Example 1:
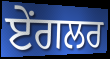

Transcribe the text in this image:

ਏਂਗਲਰ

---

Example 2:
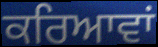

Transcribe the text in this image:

ਕਰਿਆਵਾਂ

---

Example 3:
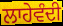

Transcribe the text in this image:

ਲਾਹੇਵੰਦੀ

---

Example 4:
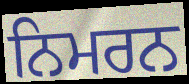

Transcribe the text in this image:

ਨਿਮਰਨ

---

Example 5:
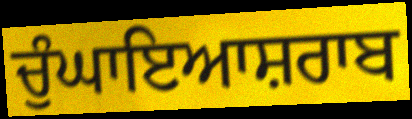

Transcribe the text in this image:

ਚੁੰਘਾਇਆਸ਼ਰਾਬ